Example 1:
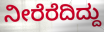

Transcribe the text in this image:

ನೀರೆರೆದಿದ್ದು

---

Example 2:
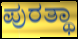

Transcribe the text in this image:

ಪುರತ್ಥಾ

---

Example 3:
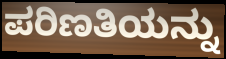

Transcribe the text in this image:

ಪರಿಣತಿಯನ್ನು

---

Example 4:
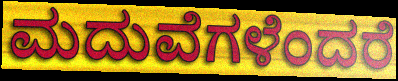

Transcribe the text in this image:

ಮದುವೆಗಳೆಂದರೆ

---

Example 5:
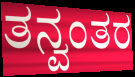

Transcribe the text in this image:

ತನ್ವಂತರ